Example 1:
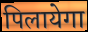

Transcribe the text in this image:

पिलायेगा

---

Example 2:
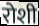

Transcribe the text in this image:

रोशी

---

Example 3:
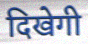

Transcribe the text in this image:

दिखेगी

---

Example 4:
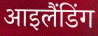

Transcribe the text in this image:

आइलैंडिंग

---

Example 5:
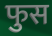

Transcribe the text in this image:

फुस